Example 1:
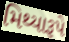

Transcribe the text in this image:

મિથ્યારૂપે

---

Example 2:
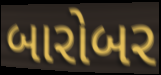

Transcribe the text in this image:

બારોબર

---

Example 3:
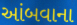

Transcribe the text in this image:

આંબવાના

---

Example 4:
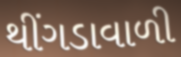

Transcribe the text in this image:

થીંગડાવાળી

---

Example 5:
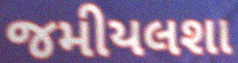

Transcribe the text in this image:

જમીયલશા